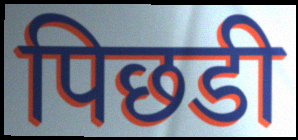
पिछडी